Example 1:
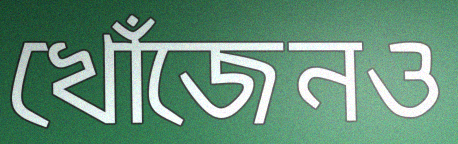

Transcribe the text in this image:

খোঁজেনও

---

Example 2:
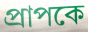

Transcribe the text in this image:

প্রাপকে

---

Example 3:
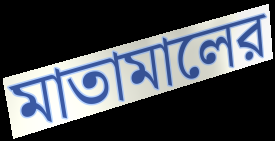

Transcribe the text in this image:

মাতামালের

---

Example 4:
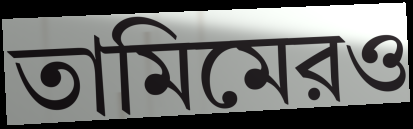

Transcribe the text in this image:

তামিমেরও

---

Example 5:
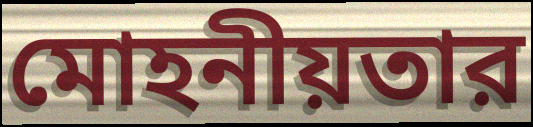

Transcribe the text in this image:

মোহনীয়তার